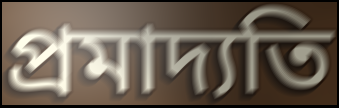
প্রমাদ্যতি